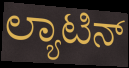
ಲ್ಯಾಟಿನ್